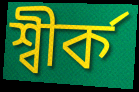
শ্বীৰ্ক